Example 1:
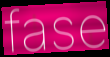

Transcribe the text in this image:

fase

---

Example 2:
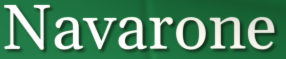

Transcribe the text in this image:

Navarone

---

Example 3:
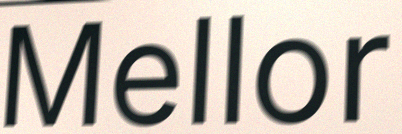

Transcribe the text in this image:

Mellor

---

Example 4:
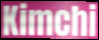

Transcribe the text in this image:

Kimchi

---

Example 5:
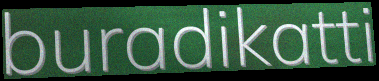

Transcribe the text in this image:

buradikatti